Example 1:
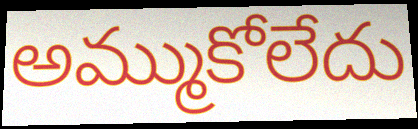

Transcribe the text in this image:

అమ్ముకోలేదు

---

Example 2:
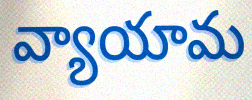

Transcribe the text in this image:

వ్యాయామ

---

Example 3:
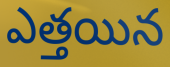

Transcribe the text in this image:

ఎత్తయిన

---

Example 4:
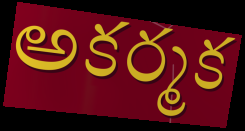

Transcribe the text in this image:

అకర్మక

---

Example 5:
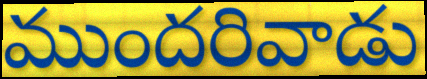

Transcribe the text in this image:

ముందరివాడు